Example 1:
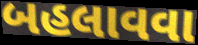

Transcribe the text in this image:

બહલાવવા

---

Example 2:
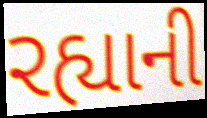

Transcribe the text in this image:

રહ્યાની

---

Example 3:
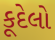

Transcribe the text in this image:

કૂદેલો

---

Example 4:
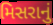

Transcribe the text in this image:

મિસરાનું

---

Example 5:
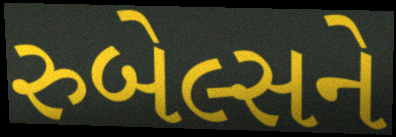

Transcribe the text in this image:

રુબેલ્સને